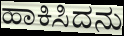
ಹಾಕಿಸಿದನು